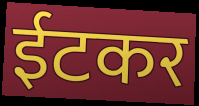
ईटकर